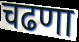
चढणा